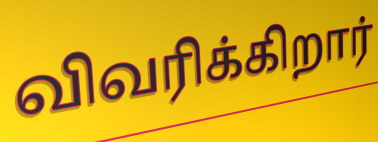
விவரிக்கிறார்